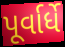
પૂર્વાર્ધે